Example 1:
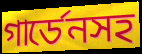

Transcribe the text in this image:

গার্ডেনসহ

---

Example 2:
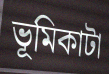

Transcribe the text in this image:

ভূমিকাটা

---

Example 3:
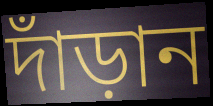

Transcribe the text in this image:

দাঁড়ান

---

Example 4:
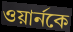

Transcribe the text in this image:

ওয়ার্নকে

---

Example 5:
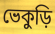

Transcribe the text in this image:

ভেকুড়ি